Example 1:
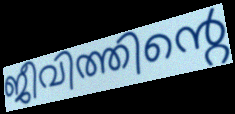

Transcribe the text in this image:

ജീവിത്തിന്റെ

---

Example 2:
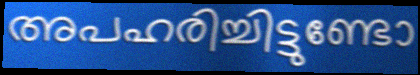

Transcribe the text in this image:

അപഹരിച്ചിട്ടുണ്ടോ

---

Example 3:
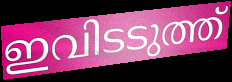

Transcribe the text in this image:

ഇവിടടുത്ത്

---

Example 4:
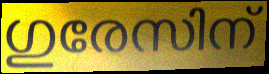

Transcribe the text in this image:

ഗുരേസിന്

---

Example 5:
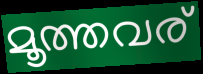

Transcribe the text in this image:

മൂത്തവര്